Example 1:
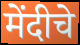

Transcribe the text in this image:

मेंदीचे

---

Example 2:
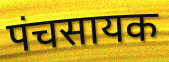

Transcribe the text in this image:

पंचसायक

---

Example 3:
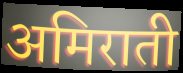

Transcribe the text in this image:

अमिराती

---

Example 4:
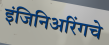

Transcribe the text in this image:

इंजिनिअरिंगचे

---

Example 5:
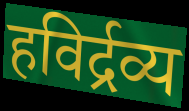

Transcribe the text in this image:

हविर्द्रव्य